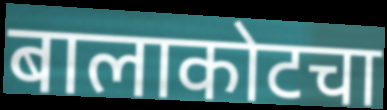
बालाकोटचा